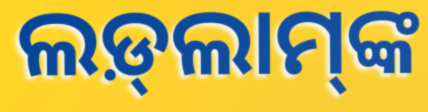
ଲଡ଼୍‍ଲାମ୍‍ଙ୍କ